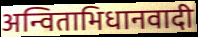
अन्विताभिधानवादी